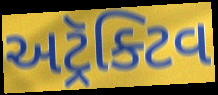
અટ્રૅક્ટિવ